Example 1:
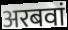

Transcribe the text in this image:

अरबवां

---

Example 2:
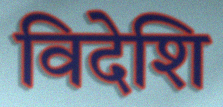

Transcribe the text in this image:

विदेशि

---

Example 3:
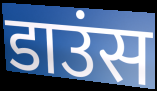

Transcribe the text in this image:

डाउंस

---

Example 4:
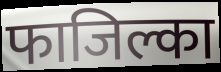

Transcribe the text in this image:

फाजिल्का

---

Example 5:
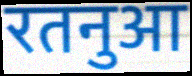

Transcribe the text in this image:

रतनुआ